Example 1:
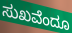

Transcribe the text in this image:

ಸುಖವೆಂದೂ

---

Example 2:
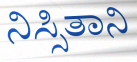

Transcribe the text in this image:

ನಿಸ್ಸಿತಾನಿ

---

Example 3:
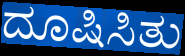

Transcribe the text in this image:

ದೂಷಿಸಿತು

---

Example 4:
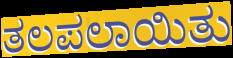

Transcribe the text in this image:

ತಲಪಲಾಯಿತು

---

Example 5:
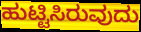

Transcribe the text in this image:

ಹುಟ್ಟಿಸಿರುವುದು